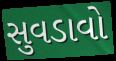
સુવડાવો